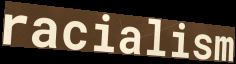
racialism